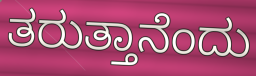
ತರುತ್ತಾನೆಂದು